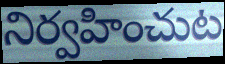
నిర్వహించుట